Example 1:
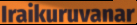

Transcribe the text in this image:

Iraikuruvanar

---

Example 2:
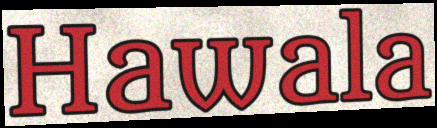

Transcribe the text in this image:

Hawala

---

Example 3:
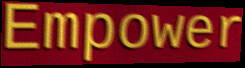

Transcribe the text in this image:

Empower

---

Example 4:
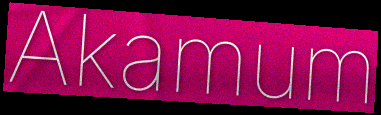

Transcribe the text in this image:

Akamum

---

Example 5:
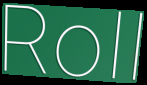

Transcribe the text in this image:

Roll